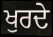
ਖੁਰਦੇ